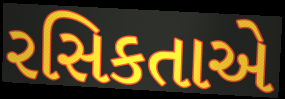
રસિકતાએ